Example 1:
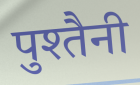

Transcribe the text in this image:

पुश्‍तैनी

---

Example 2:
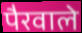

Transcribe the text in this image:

पैरवाले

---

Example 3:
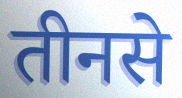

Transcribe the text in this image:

तीनसे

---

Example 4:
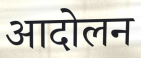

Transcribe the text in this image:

आदोलन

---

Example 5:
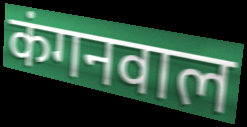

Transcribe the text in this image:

कंगनवाल